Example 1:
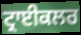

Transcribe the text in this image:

ਟ੍ਰਾਈਕਲਰ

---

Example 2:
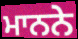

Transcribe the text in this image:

ਮਾਨਨੇ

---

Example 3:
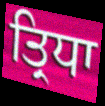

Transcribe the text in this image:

ਤ੍ਰਿਧਾ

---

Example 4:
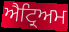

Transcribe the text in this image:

ਐਟ੍ਰਿਅਮ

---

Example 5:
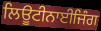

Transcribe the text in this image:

ਲਿਊਟੀਨਾਈਜਿੰਗ